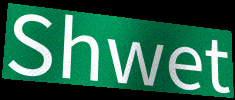
Shwet